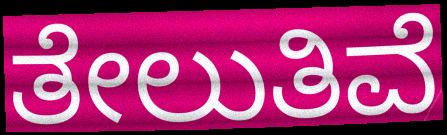
ತೇಲುತಿವೆ